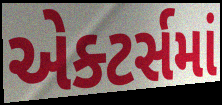
એક્ટર્સમાં